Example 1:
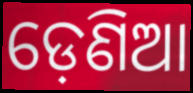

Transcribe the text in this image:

ଡ଼େଣିଆ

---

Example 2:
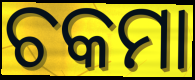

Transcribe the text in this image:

ଚକମା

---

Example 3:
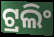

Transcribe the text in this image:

ଟ୍ରଲିଂ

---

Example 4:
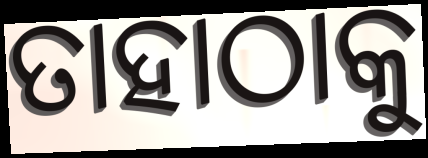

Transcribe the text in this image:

ତାହାଠାକୁ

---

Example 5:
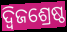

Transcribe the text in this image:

ଦ୍ୱିଜଶ୍ରେଷ୍ଠ